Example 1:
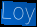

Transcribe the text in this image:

Loy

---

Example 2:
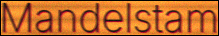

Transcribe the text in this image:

Mandelstam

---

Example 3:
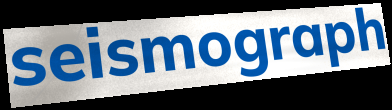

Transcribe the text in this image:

seismograph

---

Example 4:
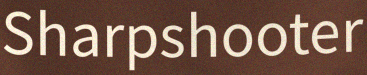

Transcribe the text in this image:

Sharpshooter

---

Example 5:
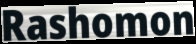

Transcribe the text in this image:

Rashomon